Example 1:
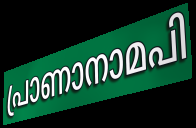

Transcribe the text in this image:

പ്രാണാനാമപി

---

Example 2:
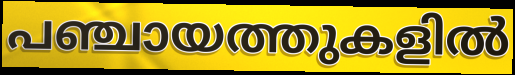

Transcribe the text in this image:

പഞ്ചായത്തുകളിൽ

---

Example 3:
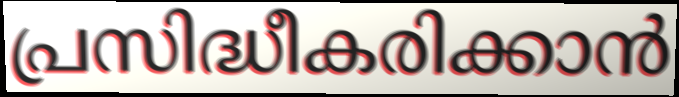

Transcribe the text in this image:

പ്രസിദ്ധീകരിക്കാൻ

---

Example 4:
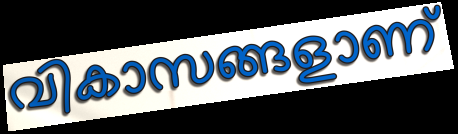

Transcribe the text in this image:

വികാസങ്ങളാണ്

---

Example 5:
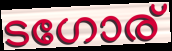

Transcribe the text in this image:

ടഗോര്